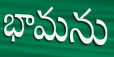
భామను